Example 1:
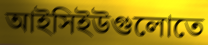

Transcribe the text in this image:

আইসিইউগুলোতে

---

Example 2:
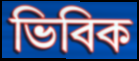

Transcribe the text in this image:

ভিবিক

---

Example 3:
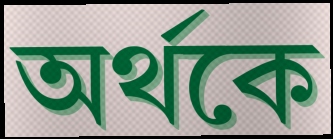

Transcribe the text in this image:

অর্থকে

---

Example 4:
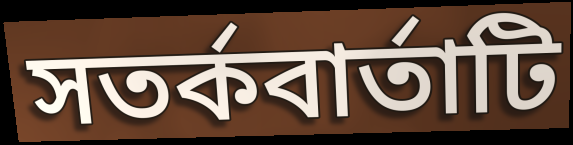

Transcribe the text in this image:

সতর্কবার্তাটি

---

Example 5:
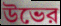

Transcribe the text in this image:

উভের